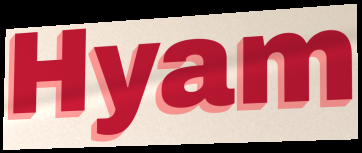
Hyam